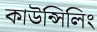
কাউন্সিলিং